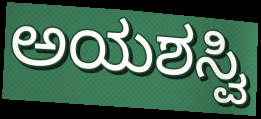
ಅಯಶಸ್ವಿ